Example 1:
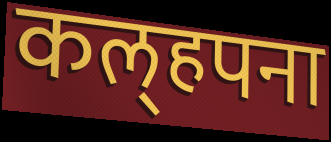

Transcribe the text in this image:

कल्हपना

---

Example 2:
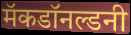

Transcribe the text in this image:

मॅकडॉनल्डनी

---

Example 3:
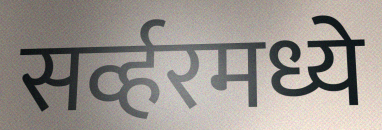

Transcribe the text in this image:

सर्व्हरमध्ये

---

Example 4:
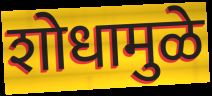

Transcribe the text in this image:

शोधामुळे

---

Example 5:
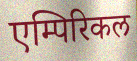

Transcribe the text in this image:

एम्पिरिकल